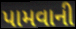
પામવાની